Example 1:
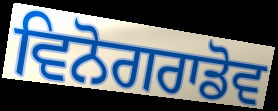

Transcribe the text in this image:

ਵਿਨੋਗਰਾਡੋਵ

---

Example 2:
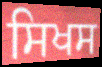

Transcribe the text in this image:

ਸਿਖਸ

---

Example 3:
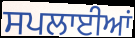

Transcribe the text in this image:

ਸਪਲਾਈਆਂ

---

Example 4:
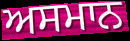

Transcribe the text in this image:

ਅਸਮਾਨ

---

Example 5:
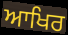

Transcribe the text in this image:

ਆਖਿਰ